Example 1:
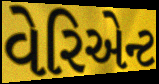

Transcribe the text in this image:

વેરિએન્ટ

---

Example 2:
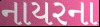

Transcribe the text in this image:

નાયરના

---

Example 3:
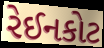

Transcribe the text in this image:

રેઈનકોટ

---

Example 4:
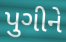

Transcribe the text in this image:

પુગીને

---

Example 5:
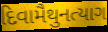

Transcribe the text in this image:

દિવામૈથુનત્યાગ